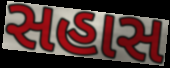
સહાસ